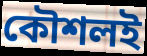
কৌশলই